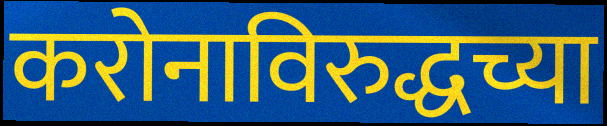
करोनाविरुद्धच्या